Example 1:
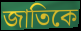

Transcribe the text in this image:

জাতিকে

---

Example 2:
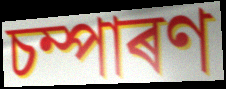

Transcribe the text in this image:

চম্পাৰণ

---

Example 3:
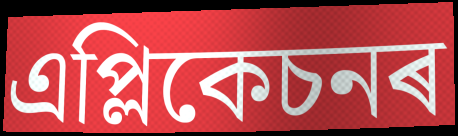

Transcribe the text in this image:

এপ্লিকেচনৰ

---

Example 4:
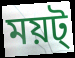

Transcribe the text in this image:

ময়ট্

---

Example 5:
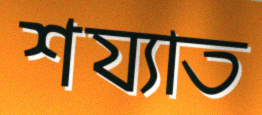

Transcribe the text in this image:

শয্যাত